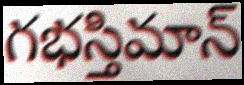
గభస్తిమాన్